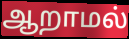
ஆறாமல்